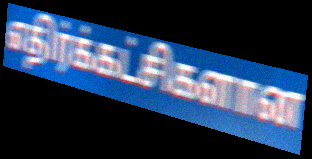
எதிர்க்கட்சிகளான